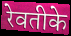
रेवतीके